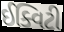
ઈક્વિટી